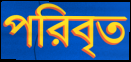
পরিবৃত